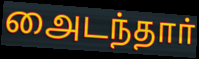
அைடந்தார்